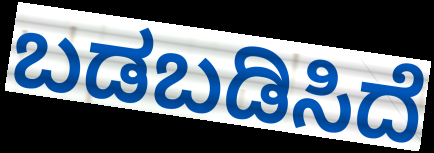
ಬಡಬಡಿಸಿದೆ